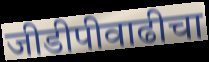
जीडीपीवाढीचा